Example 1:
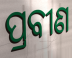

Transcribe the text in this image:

ପ୍ରବୀଣ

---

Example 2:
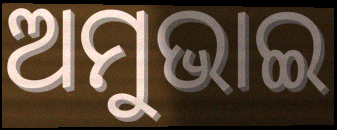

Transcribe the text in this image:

ଅମୁଭାଇ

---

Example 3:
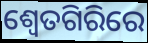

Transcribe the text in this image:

ଶ୍ୱେତଗିରିରେ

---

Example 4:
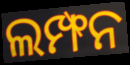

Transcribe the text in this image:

ଲମ୍ଫନ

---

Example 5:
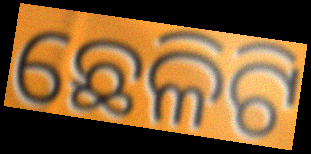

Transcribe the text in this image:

ଛେଳିଟି